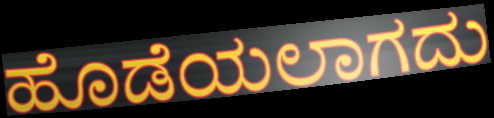
ಹೊಡೆಯಲಾಗದು